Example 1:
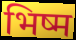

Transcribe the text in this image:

भिष्म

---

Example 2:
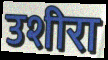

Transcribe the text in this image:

उशीरा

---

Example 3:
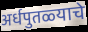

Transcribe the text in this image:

अर्धपुतळ्याचे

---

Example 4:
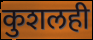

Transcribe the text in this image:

कुशलही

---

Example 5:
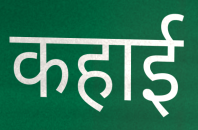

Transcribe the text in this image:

कहाई